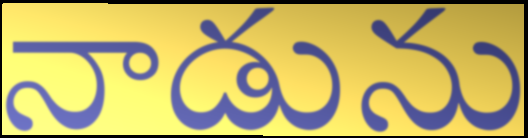
నాడును